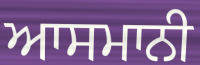
ਆਸਮਾਨੀ